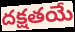
దక్షతయే